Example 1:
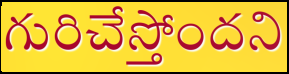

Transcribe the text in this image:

గురిచేస్తోందని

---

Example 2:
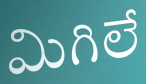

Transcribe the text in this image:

మిగిలే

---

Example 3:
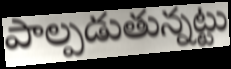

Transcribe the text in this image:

పాల్పడుతున్నట్టు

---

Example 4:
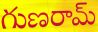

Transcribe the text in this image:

గుణరామ్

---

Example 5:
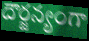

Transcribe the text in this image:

దౌర్జన్యంగా